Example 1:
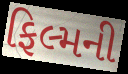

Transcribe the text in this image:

ફિલ્મની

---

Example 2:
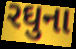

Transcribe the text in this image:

રઘુના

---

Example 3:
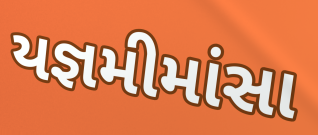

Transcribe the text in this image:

યજ્ઞમીમાંસા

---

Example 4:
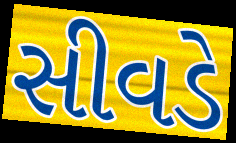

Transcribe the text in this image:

સીવડે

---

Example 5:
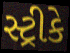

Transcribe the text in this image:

સ્ટ્રીકે